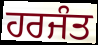
ਹਰਜੰਤ